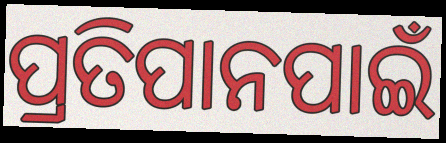
ପ୍ରତିପାନପାଇଁ